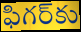
ఫిగర్‌కు